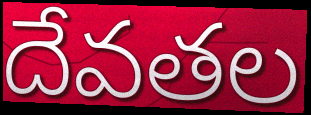
దేవతల